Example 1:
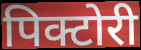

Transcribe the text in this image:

पिक्टोरी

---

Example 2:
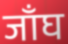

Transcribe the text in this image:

जाँघ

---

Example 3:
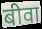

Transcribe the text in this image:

बीवा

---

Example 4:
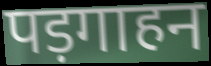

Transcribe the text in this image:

पड़गाहन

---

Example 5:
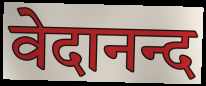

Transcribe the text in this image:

वेदानन्द